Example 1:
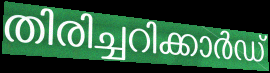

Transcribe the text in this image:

തിരിച്ചറിക്കാർഡ്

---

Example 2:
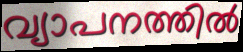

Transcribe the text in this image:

വ്യാപനത്തിൽ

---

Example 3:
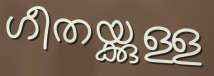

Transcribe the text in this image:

ഗീതയ്ക്കുള്ള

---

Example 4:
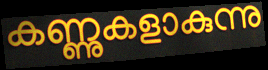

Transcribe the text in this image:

കണ്ണുകളാകുന്നു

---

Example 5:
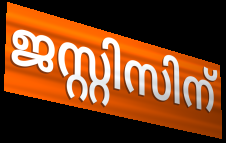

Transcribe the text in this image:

ജസ്റ്റിസിന്